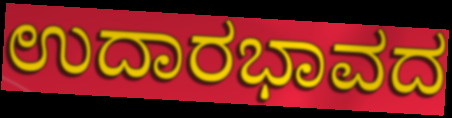
ಉದಾರಭಾವದ